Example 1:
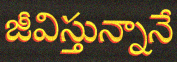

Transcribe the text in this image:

జీవిస్తున్నానే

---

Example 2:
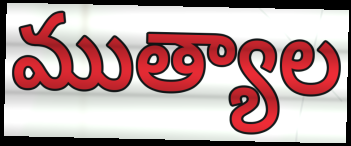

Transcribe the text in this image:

ముత్యాల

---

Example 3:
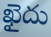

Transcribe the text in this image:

ఖైదు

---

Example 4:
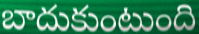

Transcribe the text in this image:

బాదుకుంటుంది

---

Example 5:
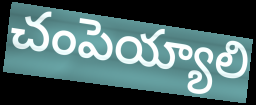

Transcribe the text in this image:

చంపెయ్యాలి